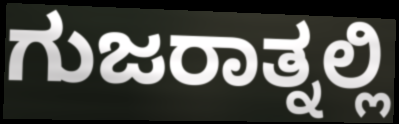
ಗುಜರಾತ್ನಲ್ಲಿ